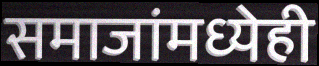
समाजांमध्येही